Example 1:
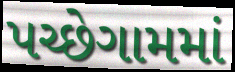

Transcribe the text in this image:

પચ્છેગામમાં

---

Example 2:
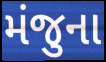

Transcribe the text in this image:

મંજુના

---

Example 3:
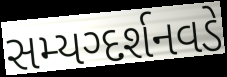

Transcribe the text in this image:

સમ્યગ્દર્શનવડે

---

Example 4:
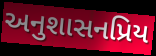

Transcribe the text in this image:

અનુશાસનપ્રિય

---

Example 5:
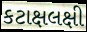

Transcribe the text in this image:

કટાક્ષલક્ષી